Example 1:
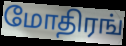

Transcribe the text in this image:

மோதிரங்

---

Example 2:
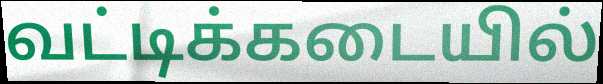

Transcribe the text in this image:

வட்டிக்கடையில்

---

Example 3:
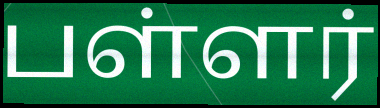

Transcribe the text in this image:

பள்ளர்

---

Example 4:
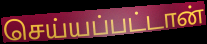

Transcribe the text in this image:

செய்யப்பட்டான்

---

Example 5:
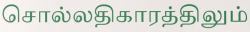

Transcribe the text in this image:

சொல்லதிகாரத்திலும்